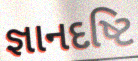
જ્ઞાનદષ્ટિ